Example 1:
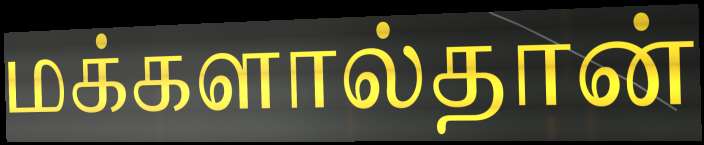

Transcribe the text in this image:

மக்களால்தான்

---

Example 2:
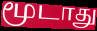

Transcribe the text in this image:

மூடாது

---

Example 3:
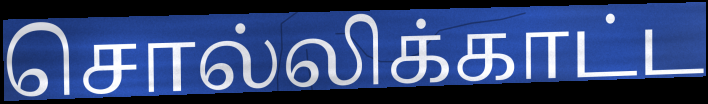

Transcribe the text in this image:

சொல்லிக்காட்ட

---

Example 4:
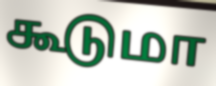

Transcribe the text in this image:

கூடுமா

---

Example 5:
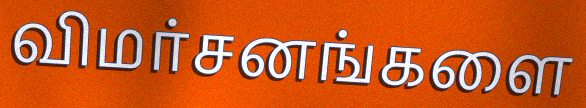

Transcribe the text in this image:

விமர்சனங்களை